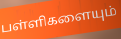
பள்ளிகளையும்